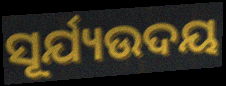
ସୂର୍ଯ୍ୟଉଦୟ